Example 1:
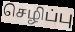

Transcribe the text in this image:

செழிப்பு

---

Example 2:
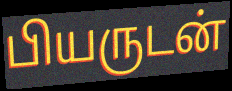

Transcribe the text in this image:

பியருடன்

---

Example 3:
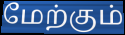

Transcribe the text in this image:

மேற்கும்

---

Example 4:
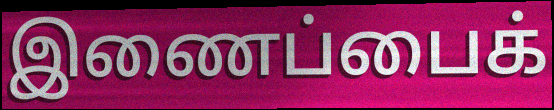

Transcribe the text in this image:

இணைப்பைக்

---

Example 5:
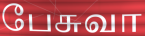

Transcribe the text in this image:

பேசுவா